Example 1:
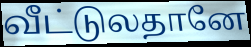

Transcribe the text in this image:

வீட்டுலதானே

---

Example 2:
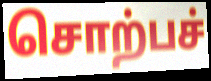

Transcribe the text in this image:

சொற்பச்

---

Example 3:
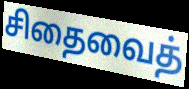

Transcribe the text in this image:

சிதைவைத்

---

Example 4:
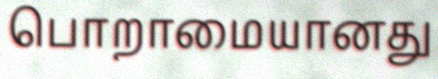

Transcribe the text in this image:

பொறாமையானது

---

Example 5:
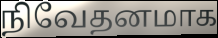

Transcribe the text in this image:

நிவேதனமாக